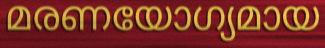
മരണയോഗ്യമായ